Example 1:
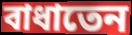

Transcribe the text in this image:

বাধাতেন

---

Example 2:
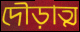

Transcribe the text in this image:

দৌড়াত্ম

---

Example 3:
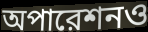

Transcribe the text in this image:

অপারেশনও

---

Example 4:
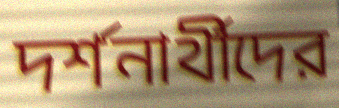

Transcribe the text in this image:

দর্শনার্থীদের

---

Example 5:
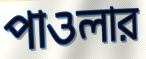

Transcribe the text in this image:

পাওলার